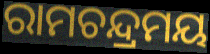
ରାମଚନ୍ଦ୍ରମୟ